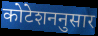
कोटेशननुसार